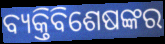
ବ୍ୟକ୍ତିବିଶେଷଙ୍କର